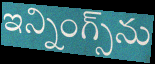
ఇన్నింగ్స్‌ను